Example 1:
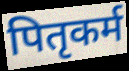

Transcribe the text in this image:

पितृकर्म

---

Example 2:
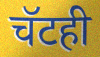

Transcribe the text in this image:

चॅटही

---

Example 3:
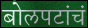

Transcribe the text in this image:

बोलपटांचं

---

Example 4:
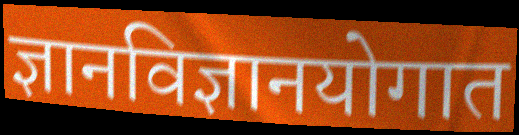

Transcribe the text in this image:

ज्ञानविज्ञानयोगात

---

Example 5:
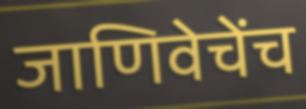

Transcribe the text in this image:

जाणिवेचेंच